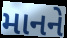
માનને